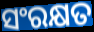
ସଂରକ୍ଷତ